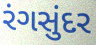
રંગસુંદર